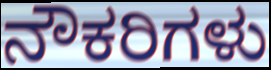
ನೌಕರಿಗಳು